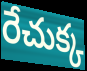
రేచుక్క